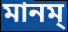
মানম্